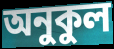
অনুকুল